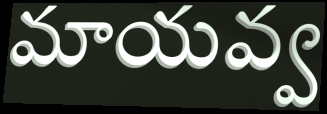
మాయవ్వ